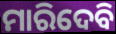
ମାରିଦେବି